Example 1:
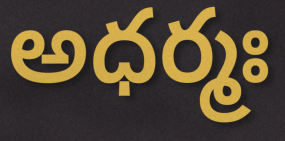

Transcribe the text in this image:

అధర్మః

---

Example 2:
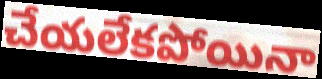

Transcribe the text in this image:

చేయలేకపోయినా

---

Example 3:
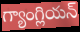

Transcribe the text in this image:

గ్యాంగ్లియన్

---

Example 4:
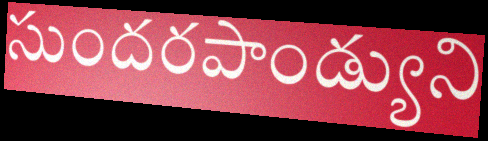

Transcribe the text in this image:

సుందరపాండ్యుని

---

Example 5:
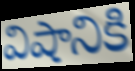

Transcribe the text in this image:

విషానికి